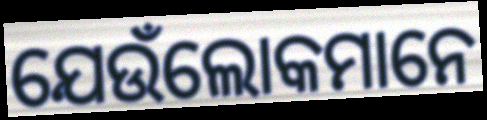
ଯେଉଁଲୋକମାନେ